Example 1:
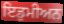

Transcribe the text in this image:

ਇਡੁਮੀਅਨ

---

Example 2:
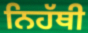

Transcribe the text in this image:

ਨਿਹੱਥੀ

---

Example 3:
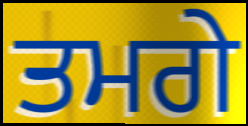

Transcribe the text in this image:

ਤਮਗੇ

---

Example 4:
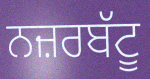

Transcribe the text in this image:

ਨਜ਼ਰਬੱਟੂ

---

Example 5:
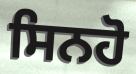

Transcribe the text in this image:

ਸਿਨਹੋ